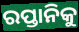
ରପ୍ତାନିକୁ